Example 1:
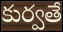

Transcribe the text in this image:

కుర్వతే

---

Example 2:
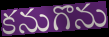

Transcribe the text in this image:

కనుగొను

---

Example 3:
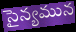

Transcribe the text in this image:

సైన్యమున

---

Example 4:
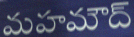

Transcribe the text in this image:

మహమౌద్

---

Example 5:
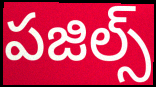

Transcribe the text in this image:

పజిల్స్